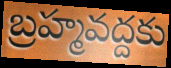
బ్రహ్మవద్దకు